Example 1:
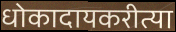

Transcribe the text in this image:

धोकादायकरीत्या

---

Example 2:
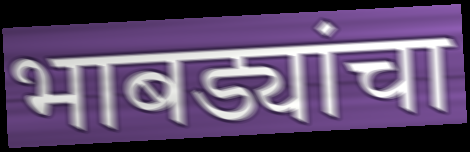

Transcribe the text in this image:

भाबड्यांचा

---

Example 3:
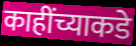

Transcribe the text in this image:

काहींच्याकडे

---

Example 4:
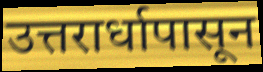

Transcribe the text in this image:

उत्तरार्धापासून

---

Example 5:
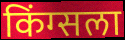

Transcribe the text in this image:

किंग्सला